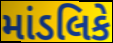
માંડલિકે